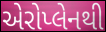
એરોપ્લેનથી